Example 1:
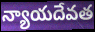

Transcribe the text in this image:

న్యాయదేవత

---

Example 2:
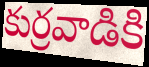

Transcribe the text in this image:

కుర్రవాడికి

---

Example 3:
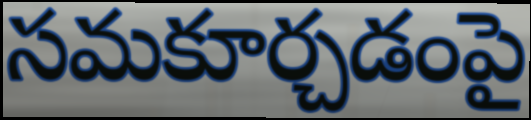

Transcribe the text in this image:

సమకూర్చడంపై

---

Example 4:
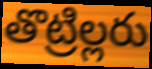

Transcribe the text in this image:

తొట్రిల్లరు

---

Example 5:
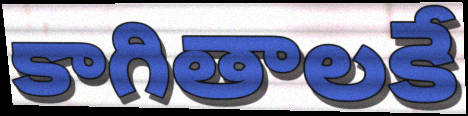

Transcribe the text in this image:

కాగితాలకే